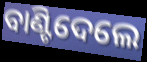
ବାଣ୍ଟିଦେଲେ